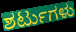
ಶರ್ಟುಗಳು